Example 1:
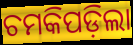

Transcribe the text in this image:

ଚମକିପଡ଼ିଲା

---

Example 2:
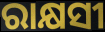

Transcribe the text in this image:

ରାକ୍ଷସୀ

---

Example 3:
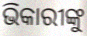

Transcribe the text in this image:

ଭିକାରୀଙ୍କୁ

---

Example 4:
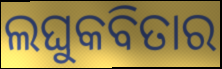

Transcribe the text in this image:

ଲଘୁକବିତାର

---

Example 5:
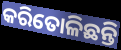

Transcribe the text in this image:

କରିତୋଳିଛନ୍ତି